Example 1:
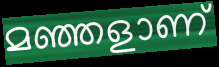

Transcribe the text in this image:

മഞ്ഞളാണ്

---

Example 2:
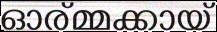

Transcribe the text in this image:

ഓര്മ്മക്കായ്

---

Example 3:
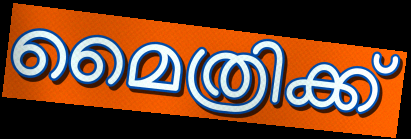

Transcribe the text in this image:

മൈത്രിക്ക്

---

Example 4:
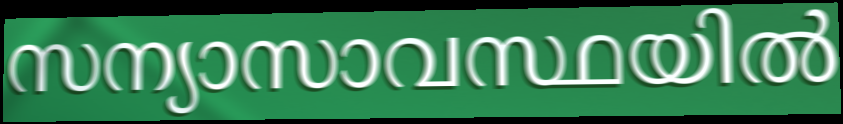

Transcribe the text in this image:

സന്യാസാവസ്ഥയിൽ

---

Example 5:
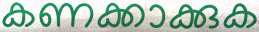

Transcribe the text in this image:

കണക്കാക്കുക